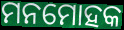
ମନମୋହକ